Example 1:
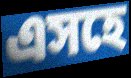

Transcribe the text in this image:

এসহে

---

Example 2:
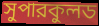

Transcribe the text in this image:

সুপারকুলড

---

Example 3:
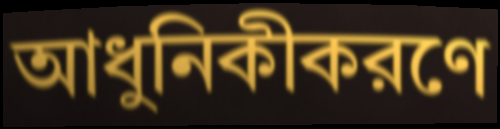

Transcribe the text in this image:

আধুনিকীকরণে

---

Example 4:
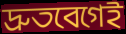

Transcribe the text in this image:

দ্রুতবেগেই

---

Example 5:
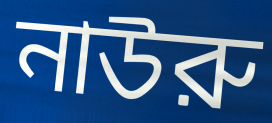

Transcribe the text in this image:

নাউরু